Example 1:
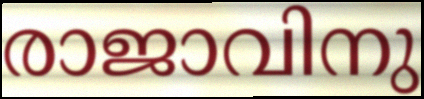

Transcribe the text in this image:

രാജാവിനു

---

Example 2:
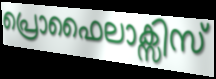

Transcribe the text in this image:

പ്രൊഫൈലാക്സിസ്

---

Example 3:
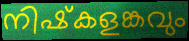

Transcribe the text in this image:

നിഷ്‌കളങ്കവും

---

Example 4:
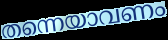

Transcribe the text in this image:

തന്നെയാവണം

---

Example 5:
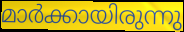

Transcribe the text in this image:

മാർക്കായിരുന്നു